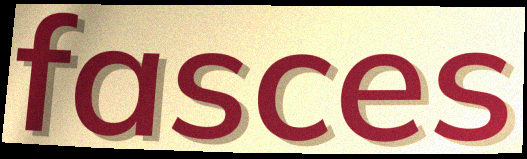
fasces